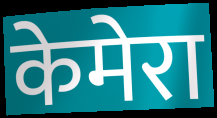
केमेरा